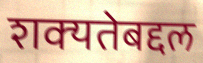
शक्यतेबद्दल